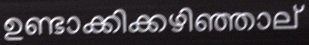
ഉണ്ടാക്കിക്കഴിഞ്ഞാല്